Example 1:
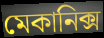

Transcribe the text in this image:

মেকানিক্স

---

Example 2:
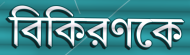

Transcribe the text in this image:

বিকিরণকে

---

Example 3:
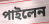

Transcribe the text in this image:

পাইলেন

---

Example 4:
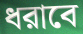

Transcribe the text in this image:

ধরাবে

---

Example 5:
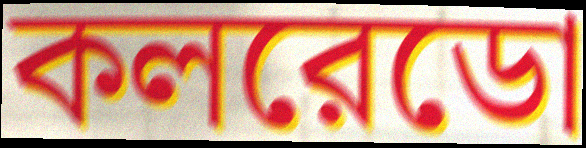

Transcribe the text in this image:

কলরেডো